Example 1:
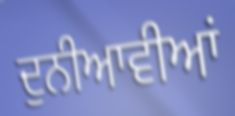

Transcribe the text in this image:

ਦੁਨੀਆਵੀਆਂ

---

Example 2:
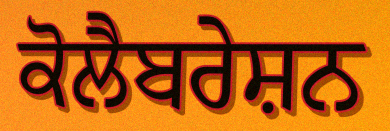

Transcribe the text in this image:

ਕੋਲੈਬਰੇਸ਼ਨ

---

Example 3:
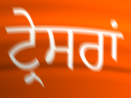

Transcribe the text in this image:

ਟ੍ਰੇਸਰਾਂ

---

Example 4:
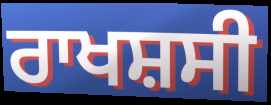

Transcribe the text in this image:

ਰਾਖਸ਼ਸੀ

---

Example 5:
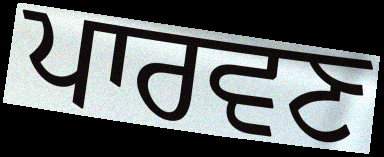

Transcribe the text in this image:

ਪਾਰਵਣ